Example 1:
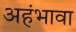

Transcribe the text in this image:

अहंभावा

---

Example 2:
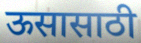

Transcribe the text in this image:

ऊसासाठी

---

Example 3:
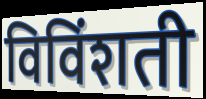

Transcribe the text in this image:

विविंशती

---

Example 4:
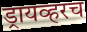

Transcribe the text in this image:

ड्रायव्हरच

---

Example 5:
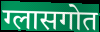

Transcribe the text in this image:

ग्लासगोत